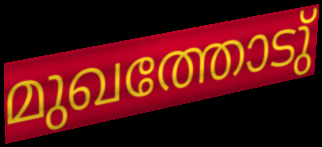
മുഖത്തോടു്